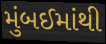
મુંબઈમાંથી